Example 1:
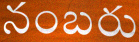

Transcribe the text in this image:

నంబరు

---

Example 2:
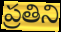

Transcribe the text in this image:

ప్రతిని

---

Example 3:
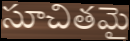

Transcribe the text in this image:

సూచితమై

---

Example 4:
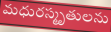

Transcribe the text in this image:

మధురస్మృతులను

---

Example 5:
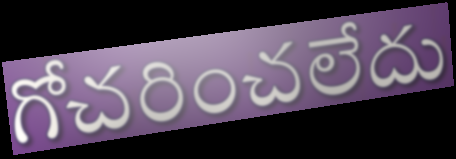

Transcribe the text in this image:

గోచరించలేదు